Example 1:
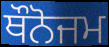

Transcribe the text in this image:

ਥੌਨੋਜਮ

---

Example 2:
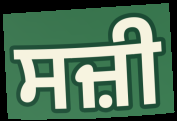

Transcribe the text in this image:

ਸਜ਼ੀ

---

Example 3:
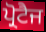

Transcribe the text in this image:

ਪ੍ਰੋਟੈਜ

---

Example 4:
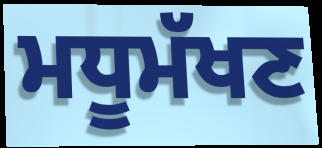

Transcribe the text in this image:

ਮਧੂਮੱਖਣ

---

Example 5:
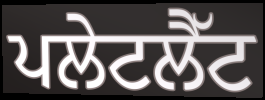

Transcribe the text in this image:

ਪਲੇਟਲੈੱਟ